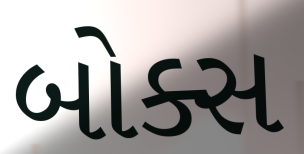
બોક્સ